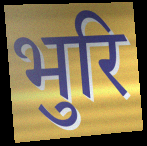
भुरि